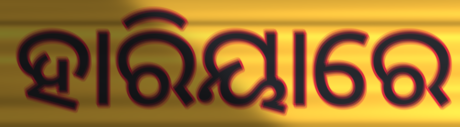
ହାରିୟାରେ